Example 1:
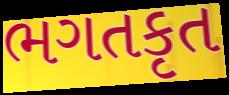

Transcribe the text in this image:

ભગતકૃત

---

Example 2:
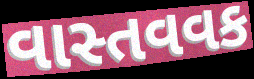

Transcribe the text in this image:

વાસ્તવવક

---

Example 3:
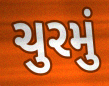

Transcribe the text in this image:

ચુરમું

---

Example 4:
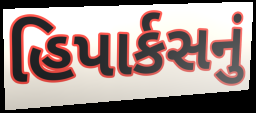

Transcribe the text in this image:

હિપાર્કસનું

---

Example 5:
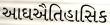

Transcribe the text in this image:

આઘઐતિહાસિક